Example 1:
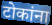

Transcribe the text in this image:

टोकांना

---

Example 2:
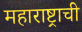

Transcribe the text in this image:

महाराष्ट्राची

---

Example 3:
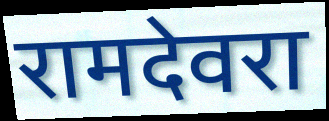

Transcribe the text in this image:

रामदेवरा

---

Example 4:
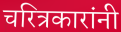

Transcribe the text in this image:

चरित्रकारांनी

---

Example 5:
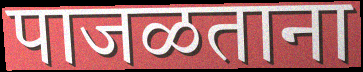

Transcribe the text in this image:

पाजळताना